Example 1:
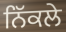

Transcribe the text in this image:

ਨਿੱਕਲੇ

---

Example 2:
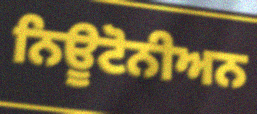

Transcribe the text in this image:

ਨਿਊਟੋਨੀਅਨ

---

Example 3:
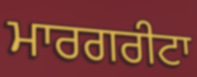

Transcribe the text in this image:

ਮਾਰਗਰੀਟਾ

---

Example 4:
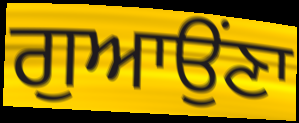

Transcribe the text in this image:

ਗੁਆਉਂਣਾ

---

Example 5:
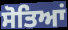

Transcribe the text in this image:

ਸੋਤਿਆਂ